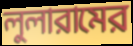
লুলারামের